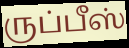
ருப்பீஸ்